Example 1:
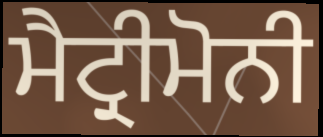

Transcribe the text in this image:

ਮੈਟ੍ਰੀਮੋਨੀ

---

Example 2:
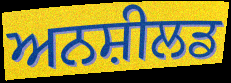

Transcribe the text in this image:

ਅਨਸ਼ੀਲਡ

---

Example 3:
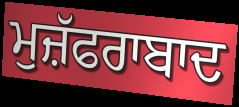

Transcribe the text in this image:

ਮੁਜ਼ੱਫਰਾਬਾਦ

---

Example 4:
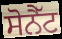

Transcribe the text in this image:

ਸੋਨੈੱਟ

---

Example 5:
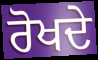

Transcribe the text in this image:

ਰੋਖਦੇ